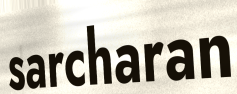
sarcharan